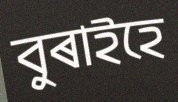
বুৰাইহে